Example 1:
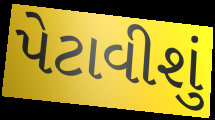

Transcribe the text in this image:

પેટાવીશું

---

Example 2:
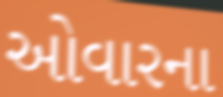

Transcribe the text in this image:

ઓવારના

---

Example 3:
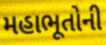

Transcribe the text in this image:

મહાભૂતોની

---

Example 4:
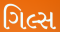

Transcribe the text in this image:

ગિલ્સ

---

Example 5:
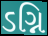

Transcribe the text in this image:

ઽગ્નિ